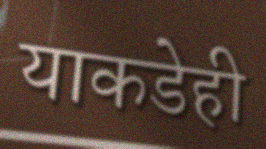
याकडेही